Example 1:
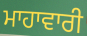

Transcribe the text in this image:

ਮਾਹਾਵਾਰੀ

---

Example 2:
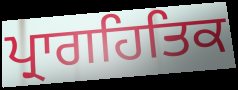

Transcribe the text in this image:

ਪ੍ਰਾਗਹਿਤਿਕ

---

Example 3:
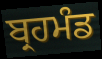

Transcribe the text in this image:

ਬ੍ਰਹਮੰਡ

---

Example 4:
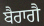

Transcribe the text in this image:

ਬੈਰਾਗੈ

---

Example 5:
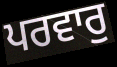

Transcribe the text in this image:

ਪਰਵਾਰੁ